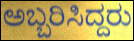
ಅಬ್ಬರಿಸಿದ್ದರು